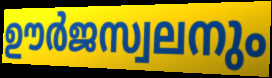
ഊർജസ്വലനും